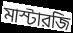
মাস্টারজি